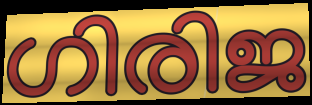
ഗിരിജ